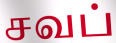
சவப்